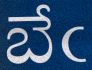
బేఁ